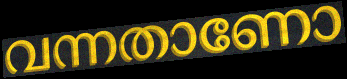
വന്നതാണോ